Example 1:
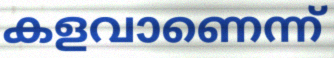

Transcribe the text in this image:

കളവാണെന്ന്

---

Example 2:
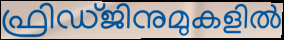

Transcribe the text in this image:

ഫ്രിഡ്ജിനുമുകളിൽ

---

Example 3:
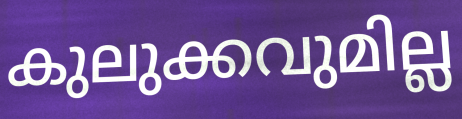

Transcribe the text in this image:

കുലുക്കവുമില്ല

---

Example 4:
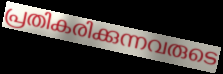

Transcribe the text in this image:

പ്രതികരിക്കുന്നവരുടെ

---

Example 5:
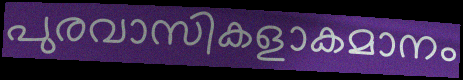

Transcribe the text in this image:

പുരവാസികളാകമാനം